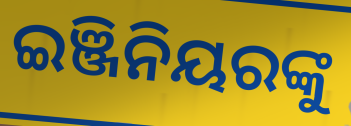
ଇଞ୍ଜିନିୟରଙ୍କୁ